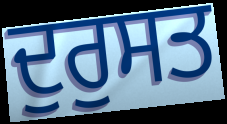
ਦੁਰੁਸਤ